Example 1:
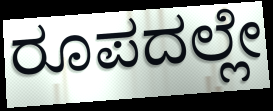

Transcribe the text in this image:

ರೂಪದಲ್ಲೇ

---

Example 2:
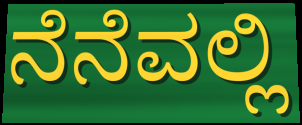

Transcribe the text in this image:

ನೆನೆವಲ್ಲಿ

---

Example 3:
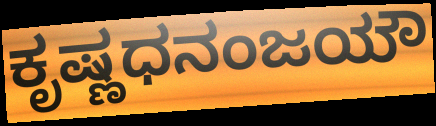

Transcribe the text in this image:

ಕೃಷ್ಣಧನಂಜಯೌ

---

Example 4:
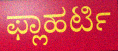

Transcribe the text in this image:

ಫ್ಲಾಹರ್ಟಿ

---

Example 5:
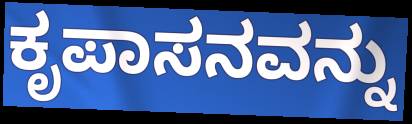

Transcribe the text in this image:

ಕೃಪಾಸನವನ್ನು